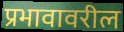
प्रभावावरील